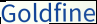
Goldfine